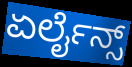
ಏರ್ಲೈನ್ಸ್